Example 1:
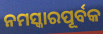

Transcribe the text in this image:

ନମସ୍କାରପୂର୍ବକ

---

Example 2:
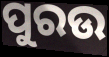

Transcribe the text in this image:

ପୁରଉ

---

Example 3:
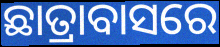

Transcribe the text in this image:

ଛାତ୍ରାବାସରେ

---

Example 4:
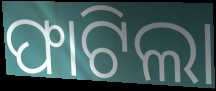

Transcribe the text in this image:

ଫାଟିଲା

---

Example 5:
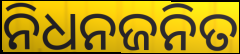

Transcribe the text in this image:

ନିଧନଜନିତ